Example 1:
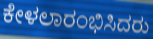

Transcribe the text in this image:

ಕೇಳಲಾರಂಭಿಸಿದರು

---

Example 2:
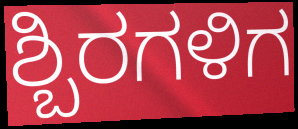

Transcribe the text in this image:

ಶ್ಬಿರಗಳಿಗ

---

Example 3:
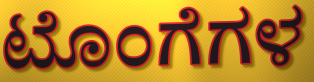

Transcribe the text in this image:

ಟೊಂಗೆಗಳ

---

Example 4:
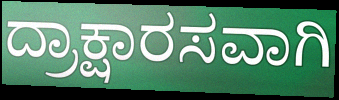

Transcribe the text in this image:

ದ್ರಾಕ್ಷಾರಸವಾಗಿ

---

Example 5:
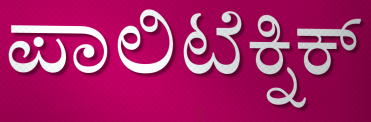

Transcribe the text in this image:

ಪಾಲಿಟೆಕ್ನಿಕ್